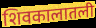
शिवकालातली